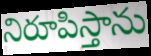
నిరూపిస్తాను